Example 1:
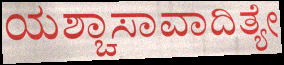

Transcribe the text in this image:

ಯಶ್ಚಾಸಾವಾದಿತ್ಯೇ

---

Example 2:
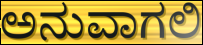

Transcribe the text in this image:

ಅನುವಾಗಲಿ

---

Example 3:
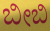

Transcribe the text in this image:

ಬೀಬಿ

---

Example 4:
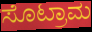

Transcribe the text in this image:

ಸೊಟ್ರಾಮ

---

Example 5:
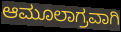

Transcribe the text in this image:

ಆಮೂಲಾಗ್ರವಾಗಿ